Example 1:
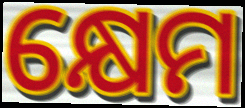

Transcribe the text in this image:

କ୍ଷେମ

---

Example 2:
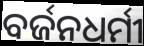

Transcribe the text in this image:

ବର୍ଜନଧର୍ମୀ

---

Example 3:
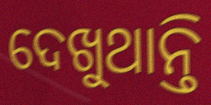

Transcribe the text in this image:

ଦେଖୁଥାନ୍ତି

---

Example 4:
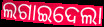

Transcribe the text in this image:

ଲଗାଇଦେଲା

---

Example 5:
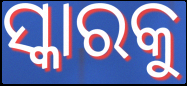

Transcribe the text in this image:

ସ୍କାରକୁ